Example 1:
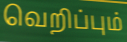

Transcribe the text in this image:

வெறிப்பும்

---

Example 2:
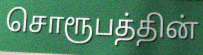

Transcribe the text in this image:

சொரூபத்தின்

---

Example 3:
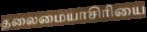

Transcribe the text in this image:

தலைமையாசிரியை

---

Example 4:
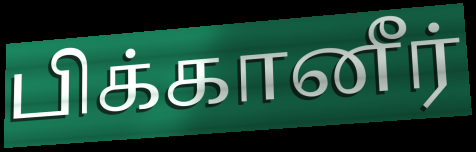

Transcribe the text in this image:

பிக்கானீர்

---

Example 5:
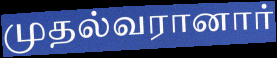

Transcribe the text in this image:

முதல்வரானார்